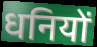
धनियों